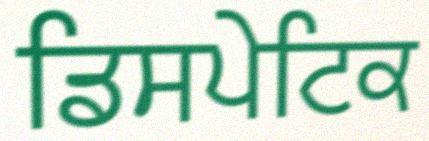
ਡਿਸਪੇਟਿਕ